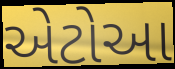
એટોઆ